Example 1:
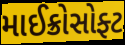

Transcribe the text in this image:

માઈક્રોસોફ્ટ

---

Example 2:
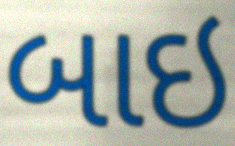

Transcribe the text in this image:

બાઇ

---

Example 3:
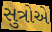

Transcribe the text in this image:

સુત્રોએ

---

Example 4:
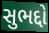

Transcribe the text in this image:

સુભદ્દો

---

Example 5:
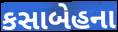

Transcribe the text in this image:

કસાબેહના